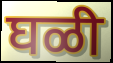
घळी